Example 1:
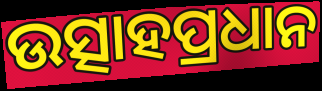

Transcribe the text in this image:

ଉତ୍ସାହପ୍ରଧାନ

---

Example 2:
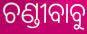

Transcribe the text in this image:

ଚଣ୍ଡୀବାବୁ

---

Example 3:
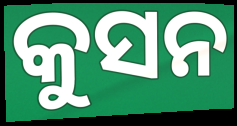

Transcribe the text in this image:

କୁସନ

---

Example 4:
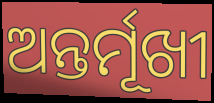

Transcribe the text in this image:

ଅନ୍ତର୍ମୂଖୀ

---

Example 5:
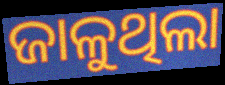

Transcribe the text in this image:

ଜାଳୁଥିଲା